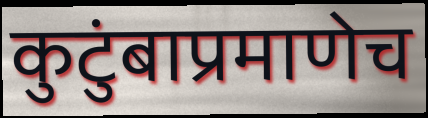
कुटुंबाप्रमाणेच